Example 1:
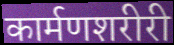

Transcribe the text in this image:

कार्मणशरीरी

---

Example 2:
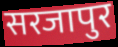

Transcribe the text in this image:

सरजापुर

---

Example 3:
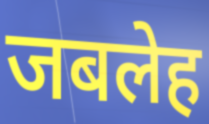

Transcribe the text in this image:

जबलेह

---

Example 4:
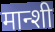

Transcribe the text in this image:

मान्शी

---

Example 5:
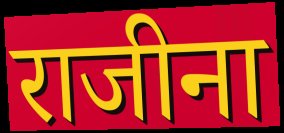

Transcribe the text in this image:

राजीना